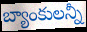
బ్యాంకులన్నీ